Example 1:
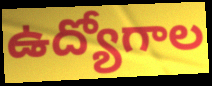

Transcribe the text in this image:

ఉద్యోగాల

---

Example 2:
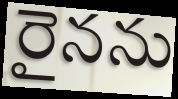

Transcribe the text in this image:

రైనను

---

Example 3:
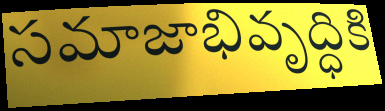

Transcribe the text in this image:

సమాజాభివృద్ధికి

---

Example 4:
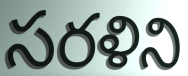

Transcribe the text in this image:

సరళిని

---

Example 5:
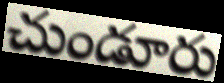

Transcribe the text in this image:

చుండూరు